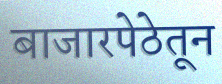
बाजारपेठेतून